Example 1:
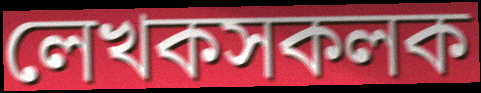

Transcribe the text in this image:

লেখকসকলক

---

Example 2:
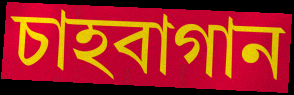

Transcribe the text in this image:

চাহবাগান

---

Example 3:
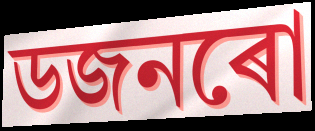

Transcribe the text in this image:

ডজনৰো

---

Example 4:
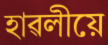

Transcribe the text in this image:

হাৱলীয়ে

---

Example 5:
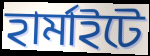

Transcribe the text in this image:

হাৰ্মাইটে